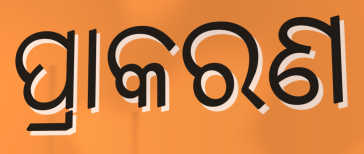
ପ୍ରାକରଣ